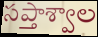
సప్తాశ్వాల